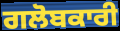
ਗਲੋਬਕਾਰੀ